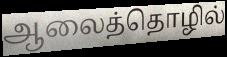
ஆலைத்தொழில்